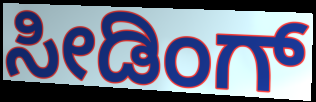
ಸೀಡಿಂಗ್